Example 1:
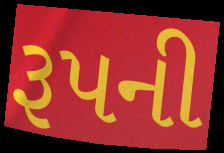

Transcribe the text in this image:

રૂપની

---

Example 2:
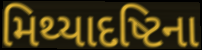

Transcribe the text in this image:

મિથ્યાદષ્ટિના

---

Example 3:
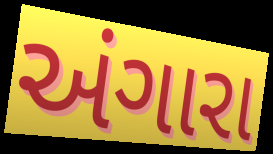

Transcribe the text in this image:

અંગારા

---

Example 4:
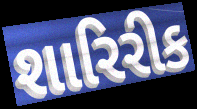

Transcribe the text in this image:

શારિરીક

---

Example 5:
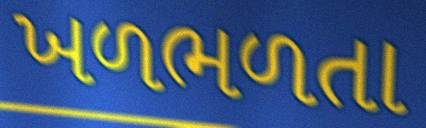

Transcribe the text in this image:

ખળભળતા